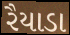
રૈયાડા